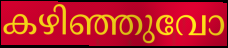
കഴിഞ്ഞുവോ